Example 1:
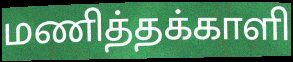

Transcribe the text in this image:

மணித்தக்காளி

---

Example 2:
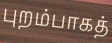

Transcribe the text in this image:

புறம்பாகத்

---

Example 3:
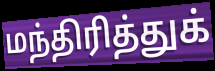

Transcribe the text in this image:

மந்திரித்துக்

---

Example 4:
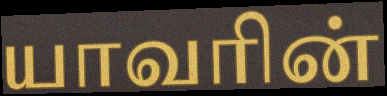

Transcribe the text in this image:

யாவரின்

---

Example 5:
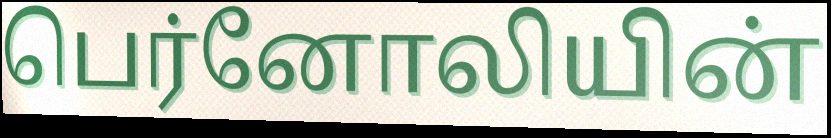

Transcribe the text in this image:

பெர்னோலியின்